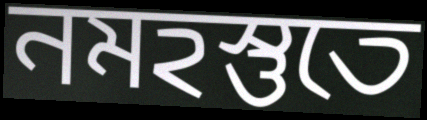
নমহস্তুতে